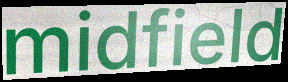
midfield